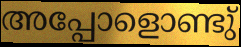
അപ്പോളൊണ്ടു്